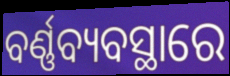
ବର୍ଣ୍ଣବ୍ୟବସ୍ଥାରେ